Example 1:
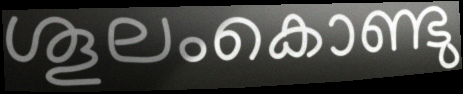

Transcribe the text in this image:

ശൂലംകൊണ്ടു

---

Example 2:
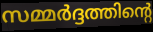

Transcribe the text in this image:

സമ്മർദ്ദത്തിന്റെ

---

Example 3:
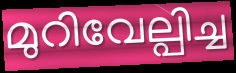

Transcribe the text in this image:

മുറിവേല്പിച്ച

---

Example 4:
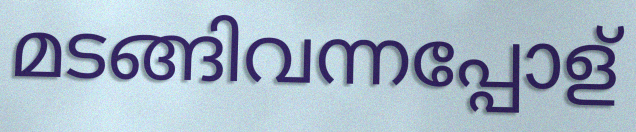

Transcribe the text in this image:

മടങ്ങിവന്നപ്പോള്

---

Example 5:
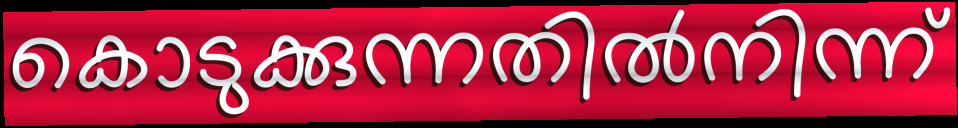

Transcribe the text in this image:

കൊടുക്കുന്നതിൽനിന്ന്